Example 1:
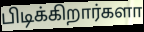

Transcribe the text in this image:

பிடிக்கிறார்களா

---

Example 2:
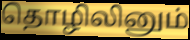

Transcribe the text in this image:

தொழிலினும்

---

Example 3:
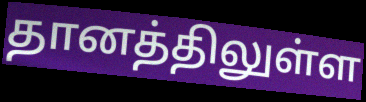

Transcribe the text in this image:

தானத்திலுள்ள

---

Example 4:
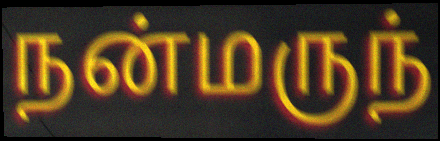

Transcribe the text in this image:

நன்மருந்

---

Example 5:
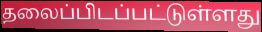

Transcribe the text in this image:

தலைப்பிடப்பட்டுள்ளது